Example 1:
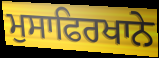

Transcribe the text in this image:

ਮੁਸਾਫਿਰਖਾਨੇ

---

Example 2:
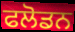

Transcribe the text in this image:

ਫਲੋਡਨ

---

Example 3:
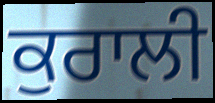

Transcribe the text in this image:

ਕੁਰਾਲੀ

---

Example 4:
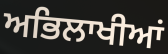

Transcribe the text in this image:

ਅਭਿਲਾਖੀਆਂ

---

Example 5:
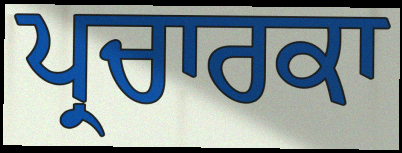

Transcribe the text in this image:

ਪ੍ਰਚਾਰਕਾ